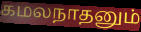
கமலநாதனும்